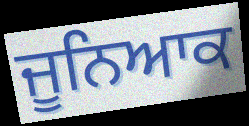
ਜੂਨਿਆਕ